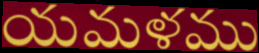
యమళము